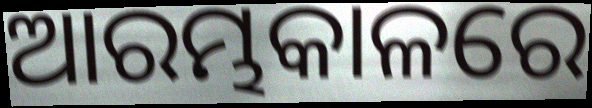
ଆରମ୍ଭକାଳରେ